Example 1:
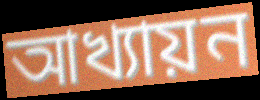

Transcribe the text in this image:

আখ্যায়ন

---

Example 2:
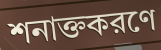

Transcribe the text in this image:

শনাক্তকরণে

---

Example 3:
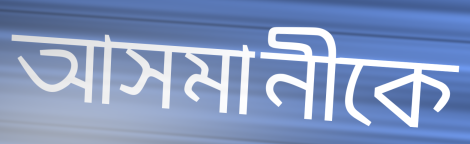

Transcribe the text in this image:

আসমানীকে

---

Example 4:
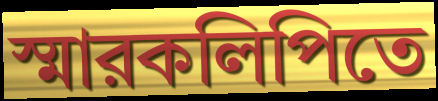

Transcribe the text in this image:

স্মারকলিপিতে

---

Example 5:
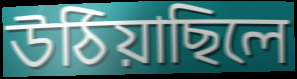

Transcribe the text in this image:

উঠিয়াছিলে